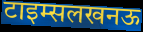
टाइम्सलखनऊ